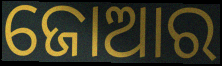
ଜୋଆର